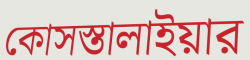
কোসস্তালাইয়ার